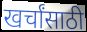
खर्चांसाठी